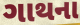
ગાથના